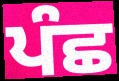
ਪੰਛ